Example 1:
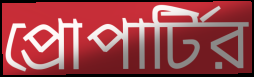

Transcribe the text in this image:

প্রোপার্টির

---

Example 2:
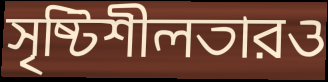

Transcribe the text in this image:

সৃষ্টিশীলতারও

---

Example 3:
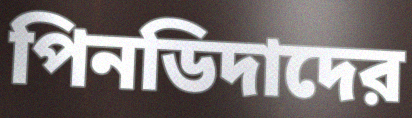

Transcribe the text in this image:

পিনডিদাদের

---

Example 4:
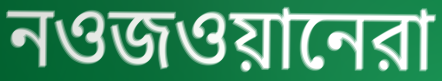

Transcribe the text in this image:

নওজওয়ানেরা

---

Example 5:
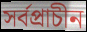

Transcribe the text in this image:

সর্বপ্রাচীন